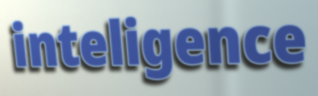
inteligence